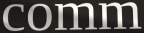
comm